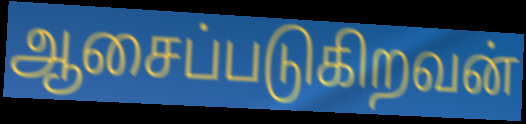
ஆசைப்படுகிறவன்